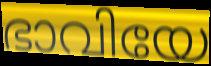
ഭാവിയേ